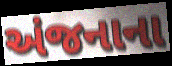
અંજનાના